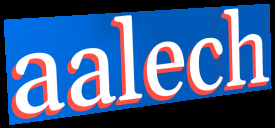
aalech